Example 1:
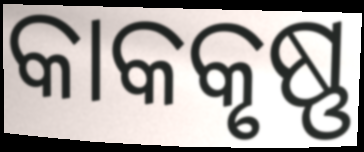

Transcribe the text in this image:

କାକକୃଷ୍ଣ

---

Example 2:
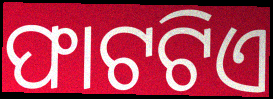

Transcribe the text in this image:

ଫାଟଟିଏ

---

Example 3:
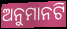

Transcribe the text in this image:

ଅନୁମାନଟି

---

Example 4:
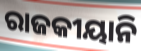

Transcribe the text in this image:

ରାଜକୀୟାନି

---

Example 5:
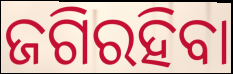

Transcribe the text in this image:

ଜଗିରହିବା